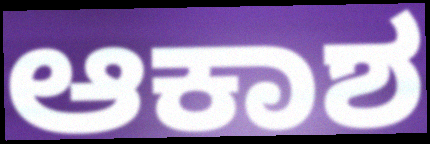
ಆಕಾಶ